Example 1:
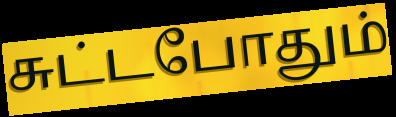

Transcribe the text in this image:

சுட்டபோதும்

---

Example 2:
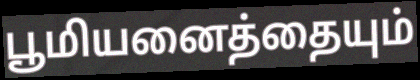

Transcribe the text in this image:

பூமியனைத்தையும்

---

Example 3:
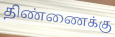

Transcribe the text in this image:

திண்ணைக்கு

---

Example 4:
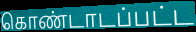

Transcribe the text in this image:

கொண்டாடப்பட்ட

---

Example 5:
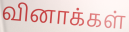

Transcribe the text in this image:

வினாக்கள்